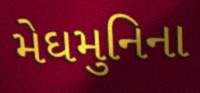
મેઘમુનિના